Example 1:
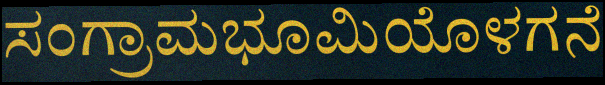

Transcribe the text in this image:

ಸಂಗ್ರಾಮಭೂಮಿಯೊಳಗನೆ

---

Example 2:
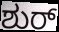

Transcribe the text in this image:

ಶುರ್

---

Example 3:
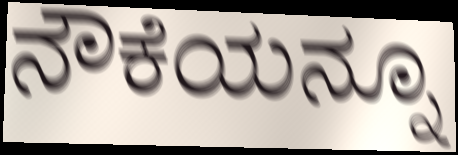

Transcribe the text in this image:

ನೌಕೆಯನ್ನೂ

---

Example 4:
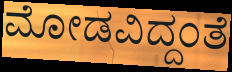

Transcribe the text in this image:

ಮೋಡವಿದ್ದಂತೆ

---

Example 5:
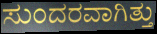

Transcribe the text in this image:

ಸುಂದರವಾಗಿತ್ತು